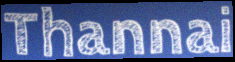
Thannai